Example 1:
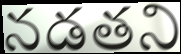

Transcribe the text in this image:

నడతని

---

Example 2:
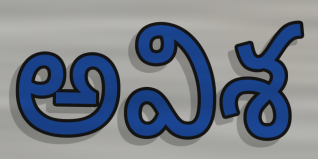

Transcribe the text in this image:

అవిశ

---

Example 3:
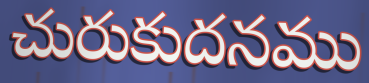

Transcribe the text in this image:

చురుకుదనము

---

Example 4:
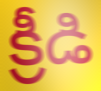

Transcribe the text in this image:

క్రీడి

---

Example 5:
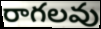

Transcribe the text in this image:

రాగలవు